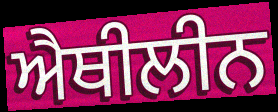
ਐਥੀਲੀਨ